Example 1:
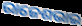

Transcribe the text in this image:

ରାଜେଶଭାଇ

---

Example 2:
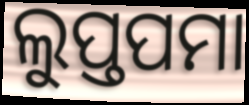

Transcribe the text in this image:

ଲୁପ୍ତପମା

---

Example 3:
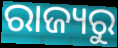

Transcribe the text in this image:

ରାଜ୍ୟରୁ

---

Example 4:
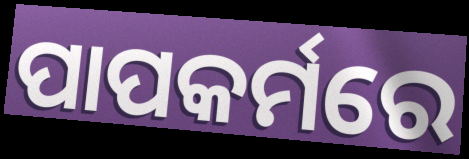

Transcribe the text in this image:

ପାପକର୍ମରେ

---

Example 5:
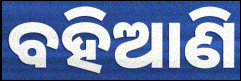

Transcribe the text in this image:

ବହିଆଣି